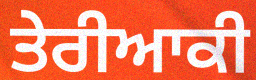
ਤੇਰੀਆਕੀ